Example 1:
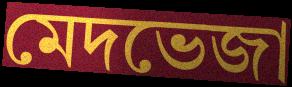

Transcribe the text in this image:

মেদভেজা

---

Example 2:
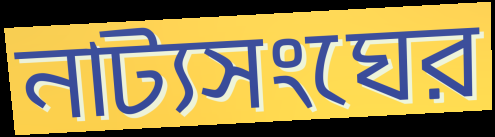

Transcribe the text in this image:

নাট্যসংঘের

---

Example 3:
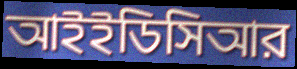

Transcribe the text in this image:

আইইডিসিআর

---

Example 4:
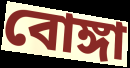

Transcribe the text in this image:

বোঙ্গা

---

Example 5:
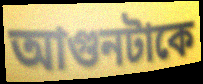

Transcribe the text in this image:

আগুনটাকে